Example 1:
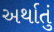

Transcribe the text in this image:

અર્થાતું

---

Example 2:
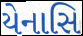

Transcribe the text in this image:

યેનાસિ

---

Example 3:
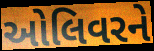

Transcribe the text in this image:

ઓલિવરને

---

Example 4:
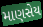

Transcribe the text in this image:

માણસેય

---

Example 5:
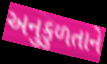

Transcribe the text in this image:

અનુકુળતાને